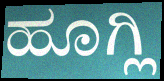
ಹೂಗ್ಲಿ